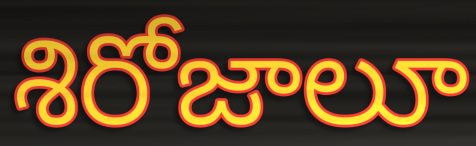
శిరోజాలూ